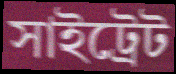
সাইট্রেট